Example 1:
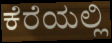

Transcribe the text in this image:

ಕೆರೆಯಲ್ಲಿ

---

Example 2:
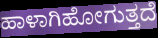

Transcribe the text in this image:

ಹಾಳಾಗಿಹೋಗುತ್ತದೆ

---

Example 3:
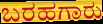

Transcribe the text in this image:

ಬರಹಗಾರು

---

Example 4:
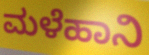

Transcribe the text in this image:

ಮಳೆಹಾನಿ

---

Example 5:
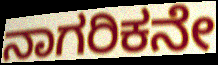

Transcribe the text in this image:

ನಾಗರಿಕನೇ